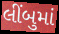
લીંબુમાં